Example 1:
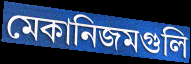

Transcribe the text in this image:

মেকানিজমগুলি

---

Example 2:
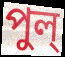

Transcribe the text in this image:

পুল্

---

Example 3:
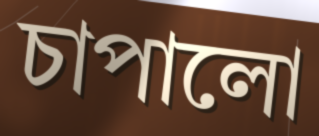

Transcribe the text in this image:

চাপালো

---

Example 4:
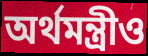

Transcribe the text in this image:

অর্থমন্ত্রীও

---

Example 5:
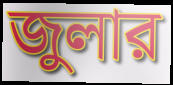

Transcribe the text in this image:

জুলার